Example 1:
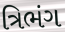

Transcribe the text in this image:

ત્રિભંગ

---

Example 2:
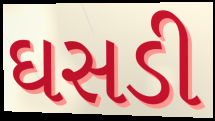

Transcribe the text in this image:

ઘસડી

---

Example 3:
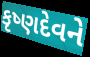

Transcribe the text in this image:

કૃષ્ણદેવને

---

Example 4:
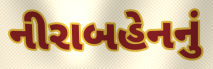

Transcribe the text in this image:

નીરાબહેનનું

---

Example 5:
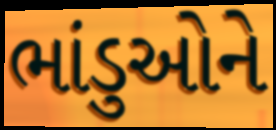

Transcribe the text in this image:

ભાંડુઓને